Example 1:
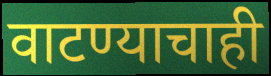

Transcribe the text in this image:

वाटण्याचाही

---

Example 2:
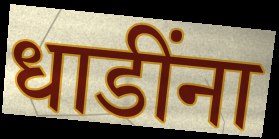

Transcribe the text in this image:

धाडींना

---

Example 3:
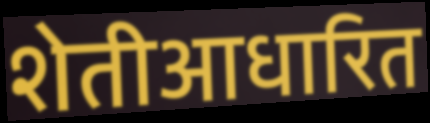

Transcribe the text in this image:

शेतीआधारित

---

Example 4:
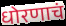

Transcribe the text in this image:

धोरणाचं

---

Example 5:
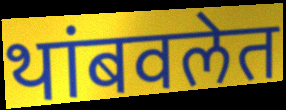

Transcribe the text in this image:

थांबवलेत